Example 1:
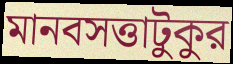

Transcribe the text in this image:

মানবসত্তাটুকুর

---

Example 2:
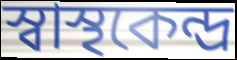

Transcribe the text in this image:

স্বাস্থকেন্দ্র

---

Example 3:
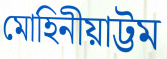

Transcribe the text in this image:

মোহিনীয়াট্টম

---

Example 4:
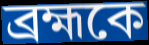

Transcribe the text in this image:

ব্রহ্মকে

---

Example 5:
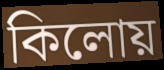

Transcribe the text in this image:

কিলোয়